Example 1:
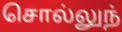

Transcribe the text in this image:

சொல்லுந்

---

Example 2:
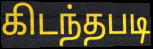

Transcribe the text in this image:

கிடந்தபடி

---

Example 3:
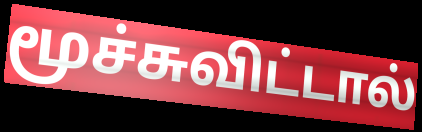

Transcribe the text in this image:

மூச்சுவிட்டால்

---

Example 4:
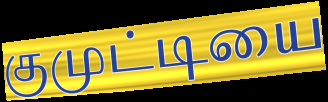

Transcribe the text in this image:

குமுட்டியை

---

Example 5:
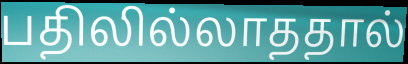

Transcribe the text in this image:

பதிலில்லாததால்